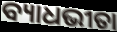
ବ୍ୟାଧଭୀତା